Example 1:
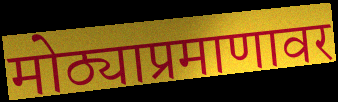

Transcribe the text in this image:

मोठ्याप्रमाणावर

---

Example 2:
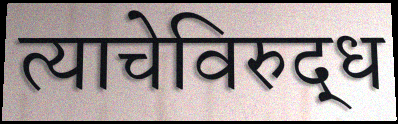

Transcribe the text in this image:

त्याचेविरुद्ध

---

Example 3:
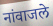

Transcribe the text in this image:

नांवाजले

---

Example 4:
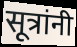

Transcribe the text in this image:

सूत्रांनी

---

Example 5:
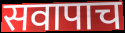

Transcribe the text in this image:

सवापाच